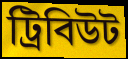
ট্রিবিউট